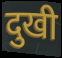
दुखी